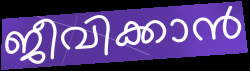
ജീവിക്കാൻ